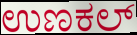
ಉಣಕಲ್